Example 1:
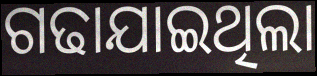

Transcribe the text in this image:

ଗଢାଯାଇଥିଲା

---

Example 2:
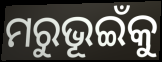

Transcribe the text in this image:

ମରୁଭୂଇଁକୁ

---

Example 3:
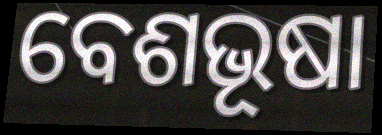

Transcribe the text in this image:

ବେଶଭୂଷା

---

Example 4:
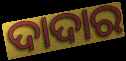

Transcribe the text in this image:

ଦାଦାର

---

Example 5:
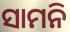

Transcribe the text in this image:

ସାମନି